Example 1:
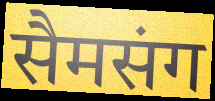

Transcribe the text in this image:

सैमसंग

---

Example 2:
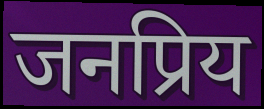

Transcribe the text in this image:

जनप्रिय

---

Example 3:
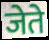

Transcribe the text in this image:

जेते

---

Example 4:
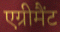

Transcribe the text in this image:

एग्रीमैंट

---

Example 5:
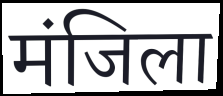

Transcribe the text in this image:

मंजिला